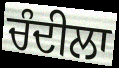
ਚੰਦੀਲਾ